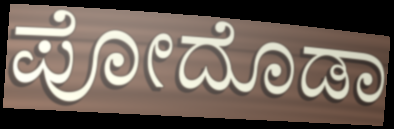
ಪೋದೊಡಾ